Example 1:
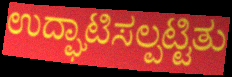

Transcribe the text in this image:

ಉದ್ಘಾಟಿಸಲ್ಪಟ್ಟಿತು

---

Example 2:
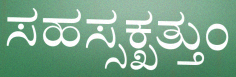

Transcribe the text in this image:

ಸಹಸ್ಸಕ್ಖತ್ತುಂ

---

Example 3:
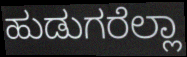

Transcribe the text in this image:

ಹುಡುಗರೆಲ್ಲಾ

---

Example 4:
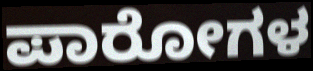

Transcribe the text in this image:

ಪಾರೋಗಳ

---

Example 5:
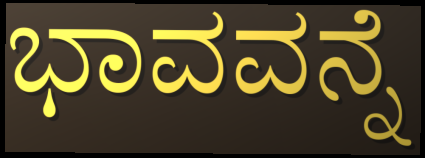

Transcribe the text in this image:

ಭಾವವನ್ನೆ